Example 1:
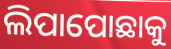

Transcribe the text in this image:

ଲିପାପୋଛାକୁ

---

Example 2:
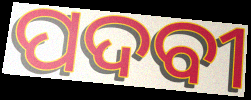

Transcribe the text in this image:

ପଦବୀ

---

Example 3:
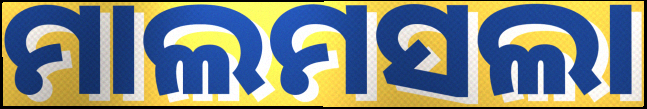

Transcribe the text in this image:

ମାଲମସଲା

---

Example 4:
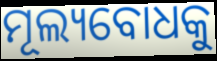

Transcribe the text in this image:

ମୂଲ୍ୟବୋଧକୁ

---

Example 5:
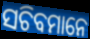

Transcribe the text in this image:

ସଚିବମାନେ